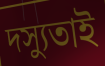
দস্যুতাই